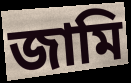
জামি